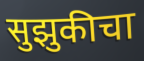
सुझुकीचा